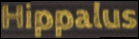
Hippalus